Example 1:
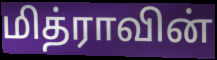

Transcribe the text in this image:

மித்ராவின்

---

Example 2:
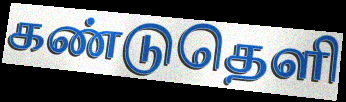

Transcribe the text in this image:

கண்டுதெளி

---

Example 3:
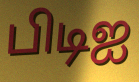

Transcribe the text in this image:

பிடிஐ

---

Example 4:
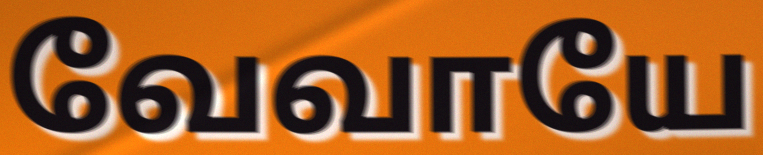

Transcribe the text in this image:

வேவாயே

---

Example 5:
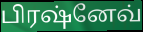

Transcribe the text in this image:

பிரஷ்னேவ்